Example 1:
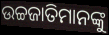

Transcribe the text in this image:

ଉଚ୍ଚଜାତିମାନଙ୍କୁ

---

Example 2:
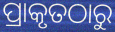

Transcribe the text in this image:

ପ୍ରାକୃତଠାରୁ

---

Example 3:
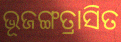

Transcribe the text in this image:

ଭୂଜଙ୍ଗତ୍ରାସିତ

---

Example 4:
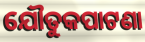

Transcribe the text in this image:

ଯୌତୁକପାଟଣା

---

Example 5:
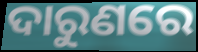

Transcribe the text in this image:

ଦାରୁଣରେ